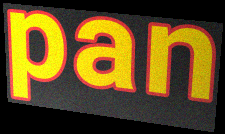
pan